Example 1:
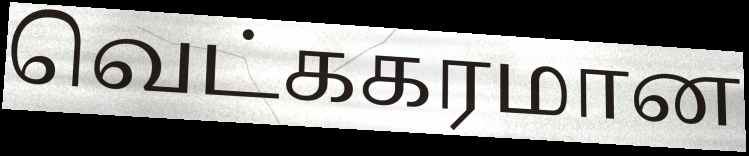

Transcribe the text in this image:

வெட்ககரமான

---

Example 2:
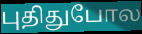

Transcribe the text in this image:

புதிதுபோல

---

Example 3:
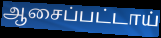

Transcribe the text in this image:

ஆசைப்பட்டாய்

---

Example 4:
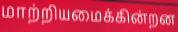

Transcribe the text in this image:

மாற்றியமைக்கின்றன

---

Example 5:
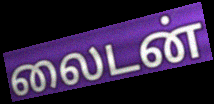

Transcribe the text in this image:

லைடன்